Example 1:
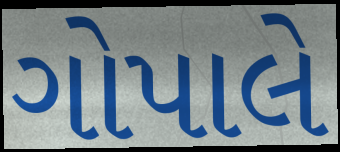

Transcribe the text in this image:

ગોપાલે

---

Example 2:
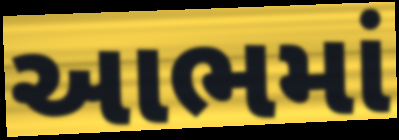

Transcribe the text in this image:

આભમાં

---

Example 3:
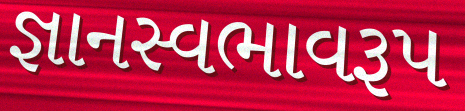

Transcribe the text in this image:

જ્ઞાનસ્વભાવરૂપ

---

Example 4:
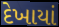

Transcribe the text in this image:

દેખાયાં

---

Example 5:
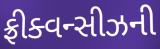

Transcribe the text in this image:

ફ્રીક્વન્સીઝની